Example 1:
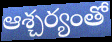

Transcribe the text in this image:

ఆశ్చర్యంతో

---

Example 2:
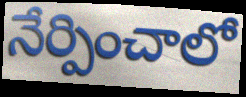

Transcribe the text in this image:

నేర్పించాలో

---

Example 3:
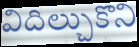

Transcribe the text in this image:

విదిల్చుకొని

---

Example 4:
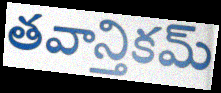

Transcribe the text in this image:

తవాన్తికమ్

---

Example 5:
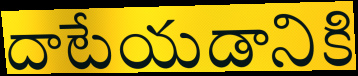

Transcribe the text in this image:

దాటేయడానికి